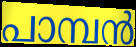
പാമ്പൻ